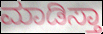
ಮಾಡಿಸ್ತಾ